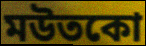
মউতকো